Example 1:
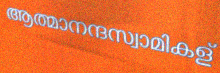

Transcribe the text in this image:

ആത്മാനന്ദസ്വാമികള്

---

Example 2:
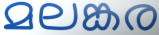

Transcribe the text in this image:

മലങ്കര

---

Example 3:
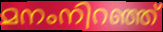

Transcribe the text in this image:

മനംനിറഞ്ഞ്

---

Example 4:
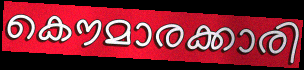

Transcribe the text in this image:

കൌമാരക്കാരി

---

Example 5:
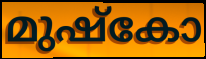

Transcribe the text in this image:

മുഷ്കോ